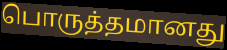
பொருத்தமானது